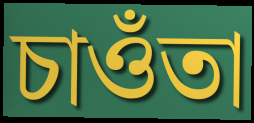
চাওঁতা